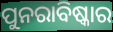
ପୁନରାବିଷ୍କାର